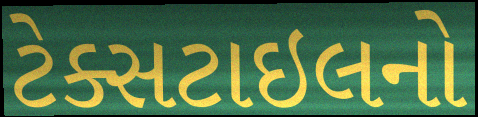
ટેક્સટાઇલનો